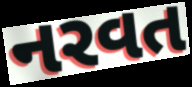
નરવત